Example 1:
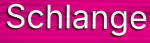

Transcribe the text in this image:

Schlange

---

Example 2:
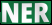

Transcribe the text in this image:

NER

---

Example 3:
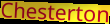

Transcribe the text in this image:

Chesterton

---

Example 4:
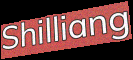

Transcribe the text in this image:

Shilliang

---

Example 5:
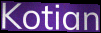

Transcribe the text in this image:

Kotian